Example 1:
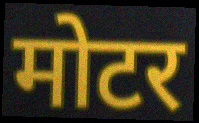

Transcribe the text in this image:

मोटर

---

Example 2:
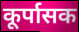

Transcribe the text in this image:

कूर्पासक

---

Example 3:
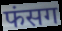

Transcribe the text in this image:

फंसग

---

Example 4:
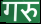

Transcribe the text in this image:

गरु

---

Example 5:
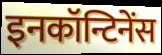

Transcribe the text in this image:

इनकॉन्टिनेंस